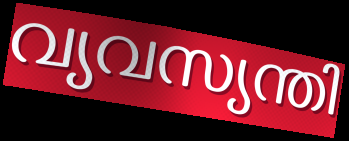
വ്യവസ്യന്തി